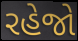
રહેજો